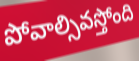
పోవాల్సివస్తోంది